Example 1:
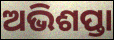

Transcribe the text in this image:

ଅଭିଶପ୍ତା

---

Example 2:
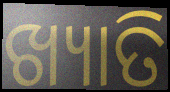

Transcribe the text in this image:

ଖ୍ଯାତି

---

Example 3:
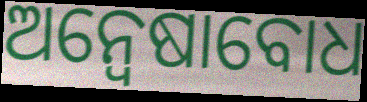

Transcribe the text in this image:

ଅନ୍ୱେଷାବୋଧ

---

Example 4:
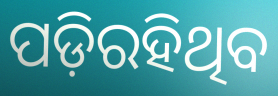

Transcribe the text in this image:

ପଡ଼ିରହିଥିବ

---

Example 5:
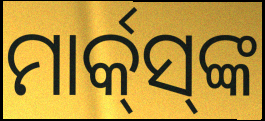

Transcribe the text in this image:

ମାର୍କ୍‌ସ୍‌ଙ୍କ